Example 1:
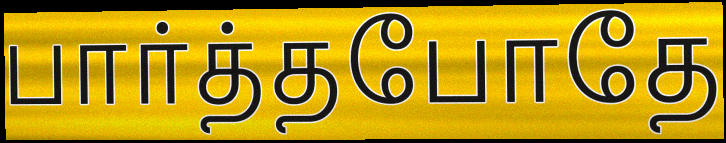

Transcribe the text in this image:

பார்த்தபோதே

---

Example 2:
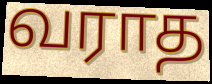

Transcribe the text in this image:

வராத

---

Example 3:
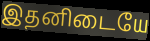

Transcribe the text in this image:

இதனிடையே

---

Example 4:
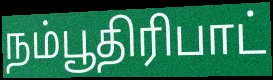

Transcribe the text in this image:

நம்பூதிரிபாட்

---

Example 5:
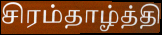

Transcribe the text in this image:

சிரம்தாழ்த்தி